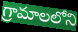
గ్రామాలలోని